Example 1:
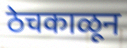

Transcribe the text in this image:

ठेचकाळून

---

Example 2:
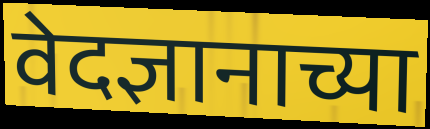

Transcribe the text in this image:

वेदज्ञानाच्या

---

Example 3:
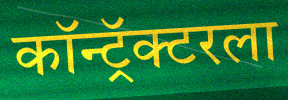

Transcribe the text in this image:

कॉन्ट्रॅक्टरला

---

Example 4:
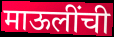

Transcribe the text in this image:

माऊलींची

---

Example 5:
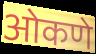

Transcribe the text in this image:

ओकणे